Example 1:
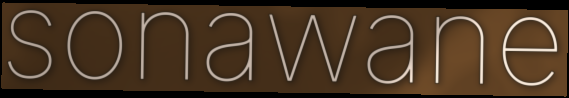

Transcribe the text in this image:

sonawane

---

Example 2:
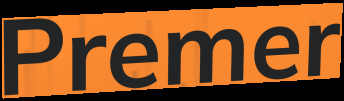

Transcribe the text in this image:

Premer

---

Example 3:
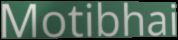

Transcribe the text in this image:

Motibhai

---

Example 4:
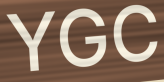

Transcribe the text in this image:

YGC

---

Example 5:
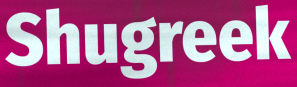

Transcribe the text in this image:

Shugreek